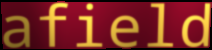
afield